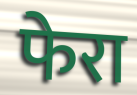
फेरा